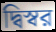
দ্বিস্বর